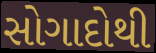
સોગાદોથી